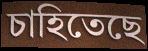
চাহিতেছে